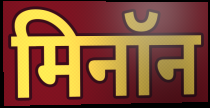
मिनॉन